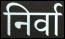
निर्वा